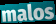
malos